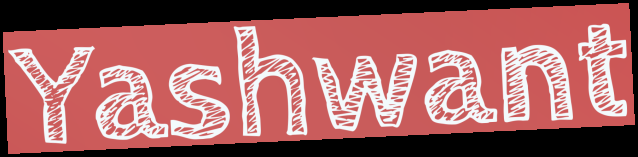
Yashwant